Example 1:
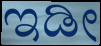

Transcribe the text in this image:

ಇಡೀ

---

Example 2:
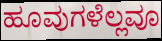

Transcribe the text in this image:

ಹೂವುಗಳೆಲ್ಲವೂ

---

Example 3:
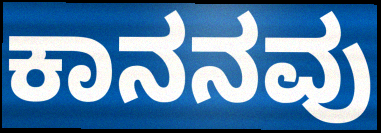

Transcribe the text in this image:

ಕಾನನವು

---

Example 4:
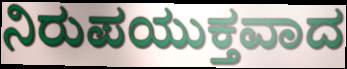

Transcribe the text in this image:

ನಿರುಪಯುಕ್ತವಾದ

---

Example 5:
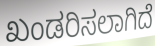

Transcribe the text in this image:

ಖಂಡರಿಸಲಾಗಿದೆ